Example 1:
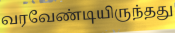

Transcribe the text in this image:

வரவேண்டியிருந்தது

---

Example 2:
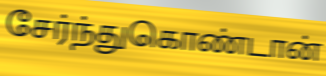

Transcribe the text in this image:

சேர்ந்துகொண்டான்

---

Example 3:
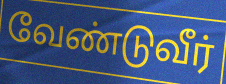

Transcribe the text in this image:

வேண்டுவீர்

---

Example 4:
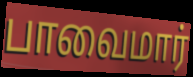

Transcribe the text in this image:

பாவைமார்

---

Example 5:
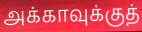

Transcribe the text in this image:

அக்காவுக்குத்